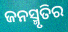
ଜନସ୍ମୃତିର